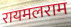
रायमलराम